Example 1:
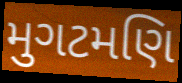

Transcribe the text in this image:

મુગટમણિ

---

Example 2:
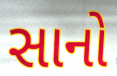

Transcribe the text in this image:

સાનો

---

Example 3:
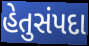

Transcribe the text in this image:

હેતુસંપદા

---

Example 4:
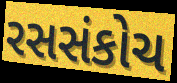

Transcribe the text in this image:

રસસંકોચ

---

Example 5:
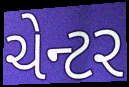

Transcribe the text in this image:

ચેન્ટર